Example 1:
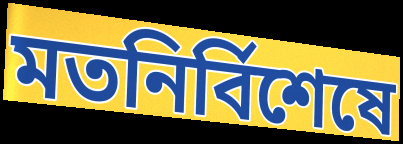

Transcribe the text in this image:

মতনির্বিশেষে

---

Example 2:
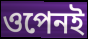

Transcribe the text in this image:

ওপেনই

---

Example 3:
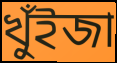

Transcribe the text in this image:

খুঁইজা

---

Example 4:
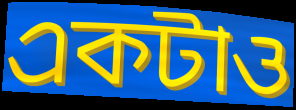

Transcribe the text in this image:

একটাও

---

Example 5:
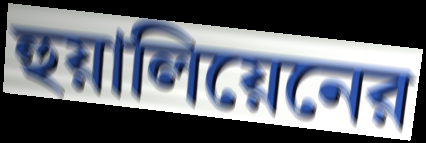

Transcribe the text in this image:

হুয়ালিয়েনের